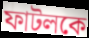
ফাটলকে